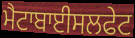
ਮੈਟਾਬਾਈਸਲਫੇਟ